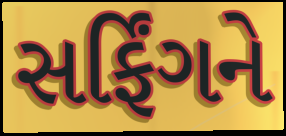
સર્ફિંગને